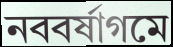
নববর্ষাগমে